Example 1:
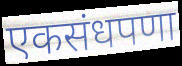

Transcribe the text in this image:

एकसंधपणा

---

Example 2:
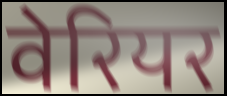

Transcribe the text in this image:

वेरियर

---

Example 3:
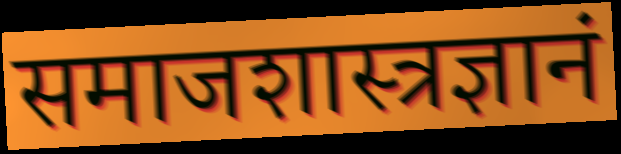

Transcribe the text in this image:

समाजशास्त्रज्ञानं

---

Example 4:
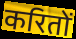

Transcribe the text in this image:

करितों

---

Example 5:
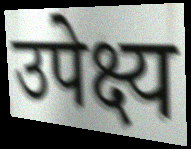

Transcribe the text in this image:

उपेक्ष्य